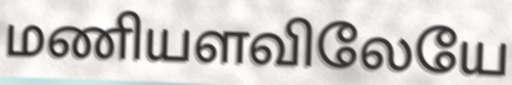
மணியளவிலேயே